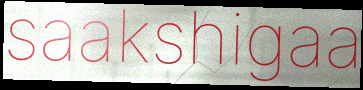
saakshigaa